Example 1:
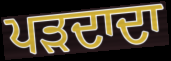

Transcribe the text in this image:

ਪੜਦਾਦਾ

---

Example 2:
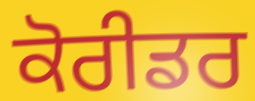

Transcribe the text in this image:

ਕੋਰੀਡਰ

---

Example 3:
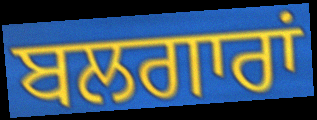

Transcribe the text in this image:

ਬਲਗਾਰਾਂ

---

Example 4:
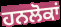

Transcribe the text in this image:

ਹਨਲੋਕਾਂ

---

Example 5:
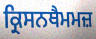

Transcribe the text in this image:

ਕ੍ਰਿਸਨਥੈਮਮਜ਼